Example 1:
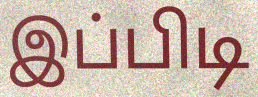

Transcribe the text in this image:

இப்பிடி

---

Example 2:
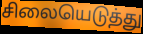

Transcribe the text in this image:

சிலையெடுத்து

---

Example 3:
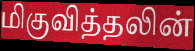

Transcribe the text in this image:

மிகுவித்தலின்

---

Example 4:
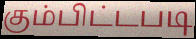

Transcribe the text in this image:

கும்பிட்டபடி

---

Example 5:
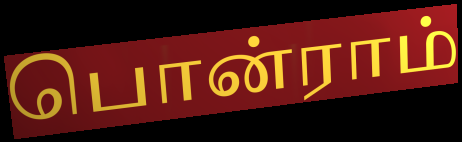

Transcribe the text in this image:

பொன்ராம்